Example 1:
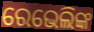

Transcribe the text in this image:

ରେଭେଲିଙ୍କ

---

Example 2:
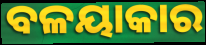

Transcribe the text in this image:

ବଳୟାକାର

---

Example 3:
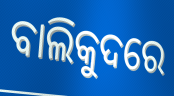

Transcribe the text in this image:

ବାଲିକୁଦରେ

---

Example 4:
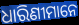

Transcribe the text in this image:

ଧାରିଣୀମାନେ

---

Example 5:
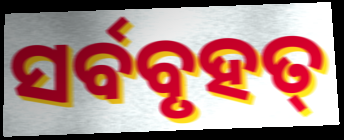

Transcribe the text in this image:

ସର୍ବବୃହତ୍